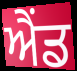
ਐੰਡ